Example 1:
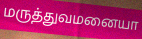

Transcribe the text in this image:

மருத்துவமனையா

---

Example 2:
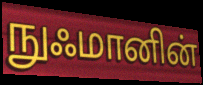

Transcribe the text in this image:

நுஃமானின்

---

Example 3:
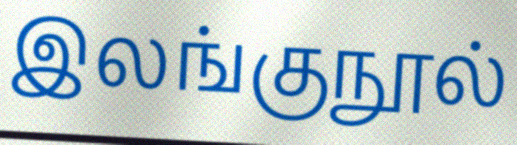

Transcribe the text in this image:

இலங்குநூல்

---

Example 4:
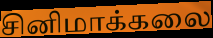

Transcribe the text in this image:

சினிமாக்கலை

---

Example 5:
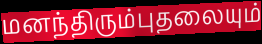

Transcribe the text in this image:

மனந்திரும்புதலையும்